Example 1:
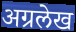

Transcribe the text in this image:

अग्रलेख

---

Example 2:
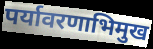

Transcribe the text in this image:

पर्यावरणाभिमुख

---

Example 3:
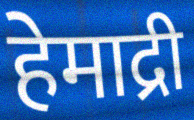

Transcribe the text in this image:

हेमाद्री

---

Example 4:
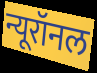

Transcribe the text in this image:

न्यूरॉनल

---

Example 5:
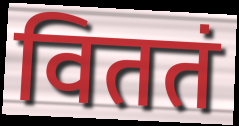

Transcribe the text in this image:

विततं